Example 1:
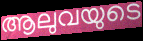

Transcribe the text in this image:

ആലുവയുടെ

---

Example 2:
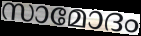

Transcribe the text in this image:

സാമോദം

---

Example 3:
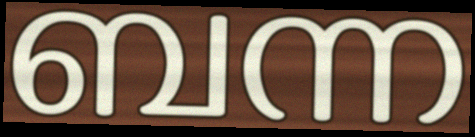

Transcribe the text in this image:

ബന്ന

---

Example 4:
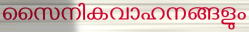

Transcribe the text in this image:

സൈനികവാഹനങ്ങളും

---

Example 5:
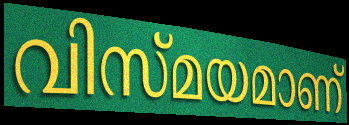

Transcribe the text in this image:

വിസ്മയമാണ്